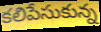
కలిపేసుకున్న